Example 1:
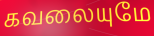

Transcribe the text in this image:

கவலையுமே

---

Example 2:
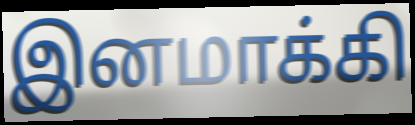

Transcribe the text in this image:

இனமாக்கி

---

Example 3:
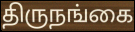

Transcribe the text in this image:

திருநங்கை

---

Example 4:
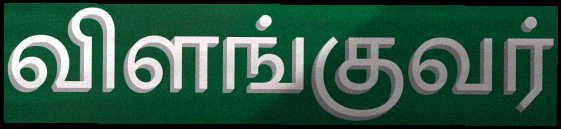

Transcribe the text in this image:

விளங்குவர்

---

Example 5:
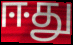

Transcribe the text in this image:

ஈது